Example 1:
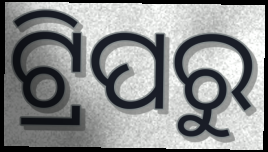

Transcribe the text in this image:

ଟ୍ରିପରୁ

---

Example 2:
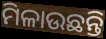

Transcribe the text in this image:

ମିଳାଉଛନ୍ତି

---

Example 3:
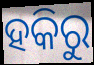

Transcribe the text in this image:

ହକିରୁ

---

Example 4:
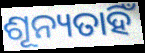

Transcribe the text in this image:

ଶୂନ୍ୟତାହିଁ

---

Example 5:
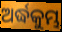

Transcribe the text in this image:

ଅର୍ଦ୍ଧକୁମ୍ଭ